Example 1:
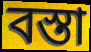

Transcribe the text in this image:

বস্তা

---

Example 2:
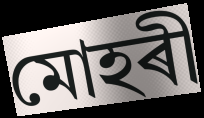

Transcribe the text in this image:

মোহৰী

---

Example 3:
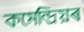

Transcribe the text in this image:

কৰ্মেন্দ্ৰিয়ৰ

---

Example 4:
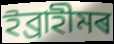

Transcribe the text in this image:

ইব্ৰাহীমৰ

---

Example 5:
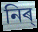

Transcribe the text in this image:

নিৰ্